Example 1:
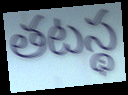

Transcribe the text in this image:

తటస్థ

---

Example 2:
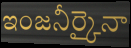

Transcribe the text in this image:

ఇంజనీర్కైనా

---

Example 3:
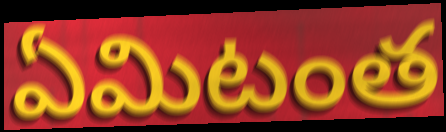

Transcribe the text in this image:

ఏమిటంత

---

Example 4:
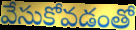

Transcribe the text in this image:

వేసుకోవడంతో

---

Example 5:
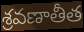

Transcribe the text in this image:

శ్రవణాతీత